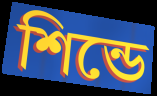
শিন্ডে